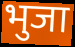
भुजा